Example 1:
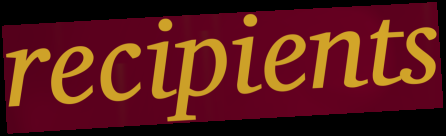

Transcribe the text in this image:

recipients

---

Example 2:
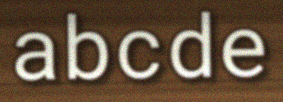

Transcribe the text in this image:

abcde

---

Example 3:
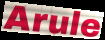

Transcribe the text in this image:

Arule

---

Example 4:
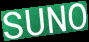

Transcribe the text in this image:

SUNO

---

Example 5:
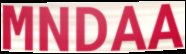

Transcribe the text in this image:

MNDAA